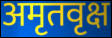
अमृतवृक्ष